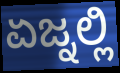
ಏಜ್ನಲ್ಲಿ